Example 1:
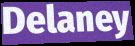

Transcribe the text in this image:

Delaney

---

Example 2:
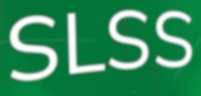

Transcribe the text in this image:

SLSS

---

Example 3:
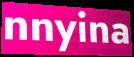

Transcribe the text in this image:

nnyina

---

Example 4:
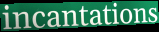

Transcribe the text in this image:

incantations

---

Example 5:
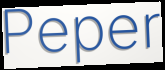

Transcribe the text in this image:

Peper